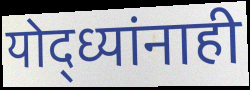
योद्ध्यांनाही